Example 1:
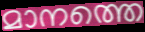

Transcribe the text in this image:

മാനത്തെ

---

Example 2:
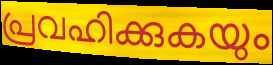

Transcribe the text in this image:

പ്രവഹിക്കുകയും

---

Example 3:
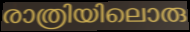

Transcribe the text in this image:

രാത്രിയിലൊരു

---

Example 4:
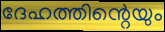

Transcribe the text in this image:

ദേഹത്തിന്റെയും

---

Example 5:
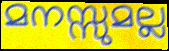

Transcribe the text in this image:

മനസ്സുമല്ല